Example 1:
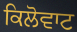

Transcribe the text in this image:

ਕਿਲੋਵਾਟ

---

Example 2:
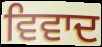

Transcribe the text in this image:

ਵਿਵਾਦ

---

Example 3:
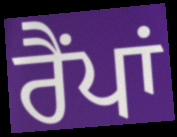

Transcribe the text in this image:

ਰੈਂਪਾਂ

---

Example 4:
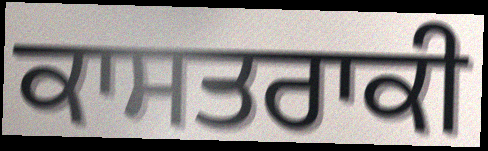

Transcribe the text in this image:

ਕਾਸਤਰਾਕੀ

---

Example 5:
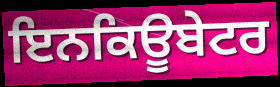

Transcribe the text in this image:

ਇਨਕਿਊਬੇਟਰ